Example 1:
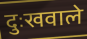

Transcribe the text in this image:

दुःखवाले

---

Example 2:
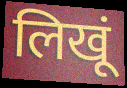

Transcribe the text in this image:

लिखूं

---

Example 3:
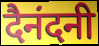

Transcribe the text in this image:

दैनंदनी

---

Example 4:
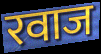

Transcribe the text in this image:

रवाज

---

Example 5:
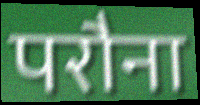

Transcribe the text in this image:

परौना